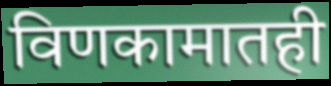
विणकामातही